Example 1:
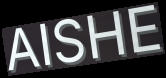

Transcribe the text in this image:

AISHE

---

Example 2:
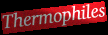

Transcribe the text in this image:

Thermophiles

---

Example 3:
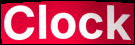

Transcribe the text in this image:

Clock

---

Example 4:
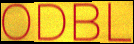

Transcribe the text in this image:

ODBL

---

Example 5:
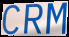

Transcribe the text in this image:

CRM